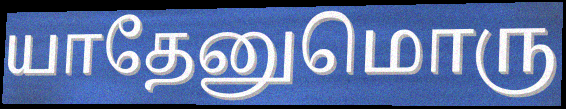
யாதேனுமொரு